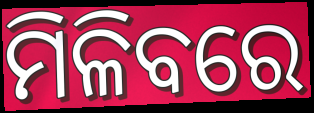
ମିଳିବରେ